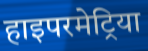
हाइपरमेट्रिया